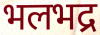
भलभद्र